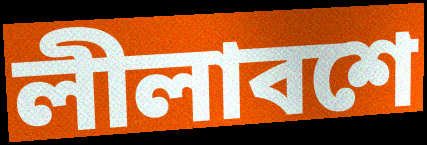
লীলাবশে